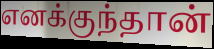
எனக்குந்தான்